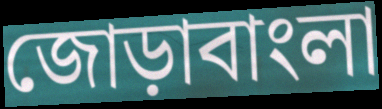
জোড়াবাংলা